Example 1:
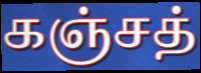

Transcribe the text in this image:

கஞ்சத்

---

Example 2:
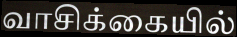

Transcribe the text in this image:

வாசிக்கையில்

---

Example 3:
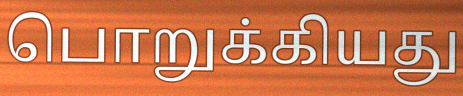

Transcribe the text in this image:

பொறுக்கியது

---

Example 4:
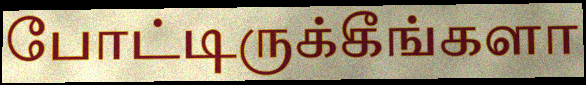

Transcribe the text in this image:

போட்டிருக்கீங்களா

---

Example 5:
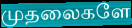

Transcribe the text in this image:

முதலைகளே